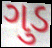
ગુડ